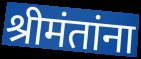
श्रीमंतांना